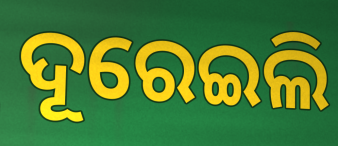
ଦୂରେଇଲି